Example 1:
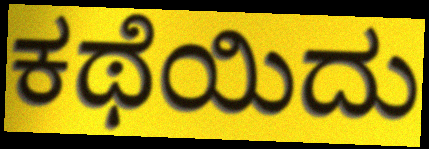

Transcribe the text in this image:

ಕಥೆಯಿದು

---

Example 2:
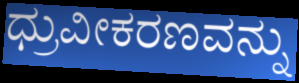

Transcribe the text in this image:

ಧ್ರುವೀಕರಣವನ್ನು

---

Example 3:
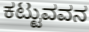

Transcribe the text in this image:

ಕಟ್ಟುವವನ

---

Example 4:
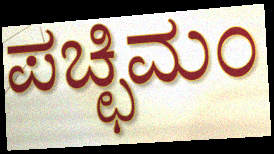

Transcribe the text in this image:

ಪಚ್ಛಿಮಂ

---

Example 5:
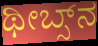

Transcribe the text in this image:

ಥೀಬ್ಸ್‌ನ